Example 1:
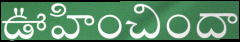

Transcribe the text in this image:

ఊహించిందా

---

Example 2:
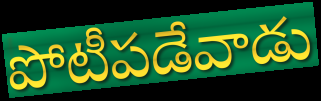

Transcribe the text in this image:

పోటీపడేవాడు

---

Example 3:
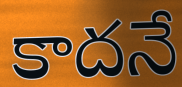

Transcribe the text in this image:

కాదనే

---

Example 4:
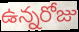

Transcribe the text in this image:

ఉన్నరోజు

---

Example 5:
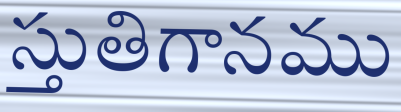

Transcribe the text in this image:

స్తుతిగానము